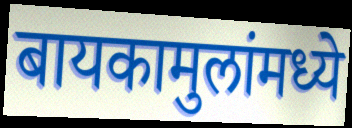
बायकामुलांमध्ये